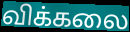
விக்கலை